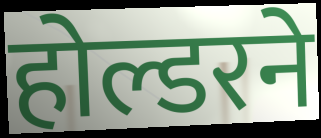
होल्डरने